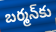
బర్మన్‌కు